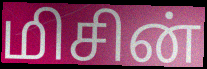
மிசின்